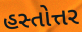
હસ્તોત્તર